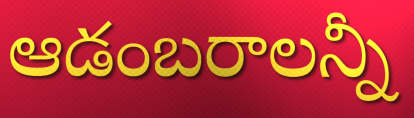
ఆడంబరాలన్నీ